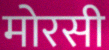
मोरसी